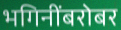
भगिनींबरोबर